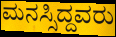
ಮನಸ್ಸಿದ್ದವರು